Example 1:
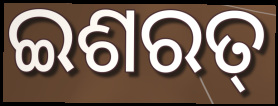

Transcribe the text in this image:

ଇଶରତ୍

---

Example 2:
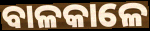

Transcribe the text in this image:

ବାଳକାଳେ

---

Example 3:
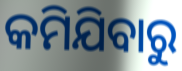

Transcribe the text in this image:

କମିଯିବାରୁ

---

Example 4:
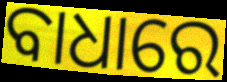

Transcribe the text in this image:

ବାଧାରେ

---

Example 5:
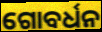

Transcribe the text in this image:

ଗୋବର୍ଧନ